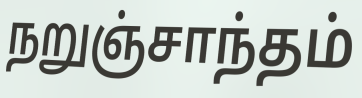
நறுஞ்சாந்தம்